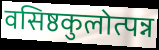
वसिष्ठकुलोत्पन्न